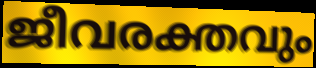
ജീവരക്തവും